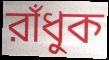
রাঁধুক